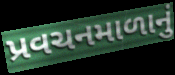
પ્રવચનમાળાનું